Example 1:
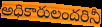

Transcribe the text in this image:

అధికారులందరినీ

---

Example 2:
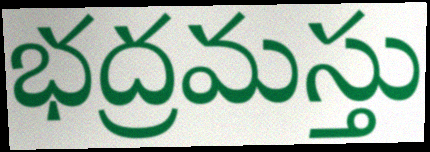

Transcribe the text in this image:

భద్రమస్తు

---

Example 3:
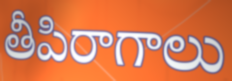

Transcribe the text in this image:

తీపిరాగాలు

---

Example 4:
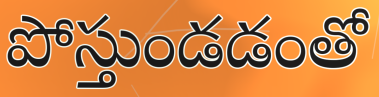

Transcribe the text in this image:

పోస్తుండడంతో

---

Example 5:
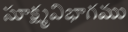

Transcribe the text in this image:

సూక్ష్మవిభాగము